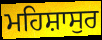
ਮਹਿਸ਼ਾਸੁਰ